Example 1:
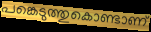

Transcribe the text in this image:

പങ്കെടുത്തുകൊണ്ടാണ്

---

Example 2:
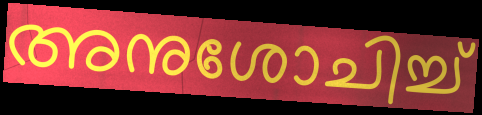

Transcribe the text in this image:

അനുശോചിച്ച്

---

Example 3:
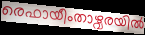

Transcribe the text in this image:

രെഫായീംതാഴ്വരയിൽ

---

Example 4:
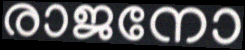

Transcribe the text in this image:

രാജനോ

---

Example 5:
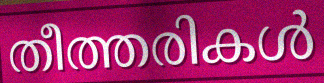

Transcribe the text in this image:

തീത്തരികൾ